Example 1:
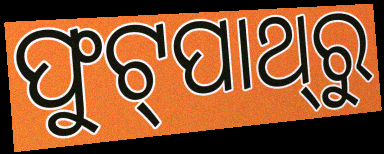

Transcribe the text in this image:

ଫୁଟ୍‌ପାଥ୍‌ରୁ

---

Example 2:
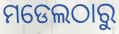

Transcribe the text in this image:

ମଡେଲଠାରୁ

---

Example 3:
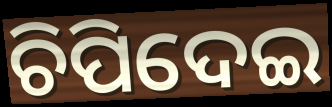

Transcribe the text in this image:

ଚିପିଦେଇ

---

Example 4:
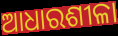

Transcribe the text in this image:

ଆଧାରଶୀଳା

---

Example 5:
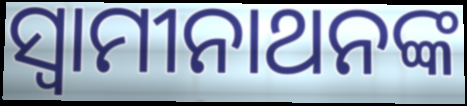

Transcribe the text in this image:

ସ୍ଵାମୀନାଥନଙ୍କ